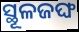
ସ୍ଥୂଳଜଙ୍ଘ